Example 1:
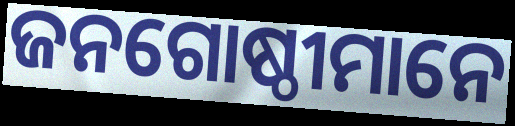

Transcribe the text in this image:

ଜନଗୋଷ୍ଠୀମାନେ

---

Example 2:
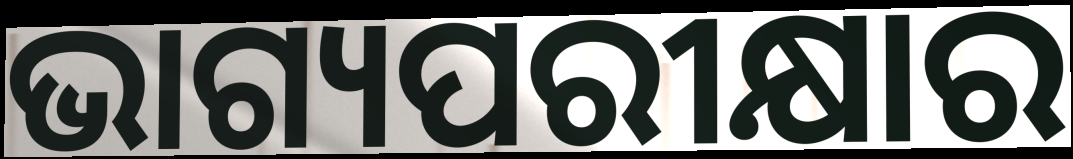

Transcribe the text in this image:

ଭାଗ୍ୟପରୀକ୍ଷାର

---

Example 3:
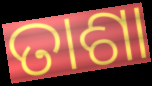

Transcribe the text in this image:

ତାଶା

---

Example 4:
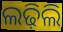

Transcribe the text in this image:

ଲଢ଼ିଲି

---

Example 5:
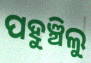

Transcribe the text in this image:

ପହୁଞ୍ଚିଲୁ